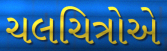
ચલચિત્રોએ